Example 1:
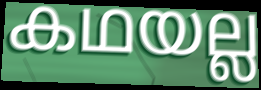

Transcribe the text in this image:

കഥയല്ല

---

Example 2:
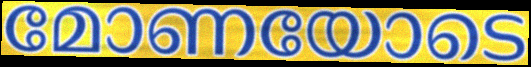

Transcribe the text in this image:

മോണയോടെ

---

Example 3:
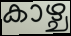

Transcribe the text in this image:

കാഴ്ച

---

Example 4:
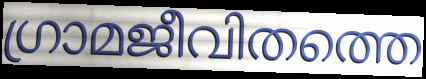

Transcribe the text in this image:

ഗ്രാമജീവിതത്തെ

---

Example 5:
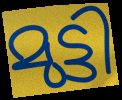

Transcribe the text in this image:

മുട്ടി